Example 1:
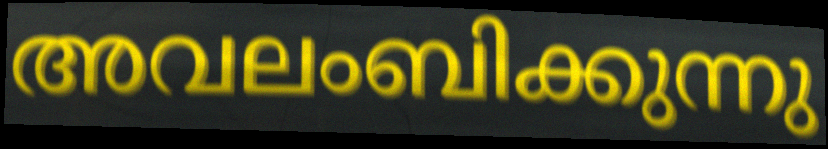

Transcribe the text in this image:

അവലംബിക്കുന്നു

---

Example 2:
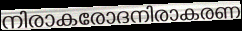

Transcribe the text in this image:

നിരാകരോദനിരാകരണ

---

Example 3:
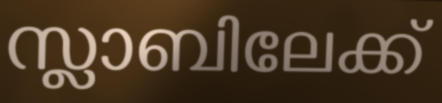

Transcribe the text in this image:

സ്ലാബിലേക്ക്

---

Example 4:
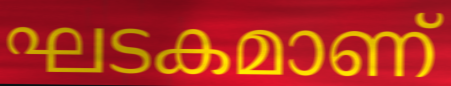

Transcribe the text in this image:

ഘടകമാണ്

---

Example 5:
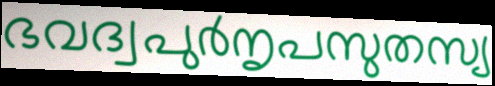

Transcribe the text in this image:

ഭവദ്വപുർനൃപസുതസ്യ